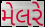
મેલરે